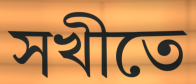
সখীতে